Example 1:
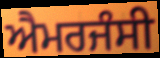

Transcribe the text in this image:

ਐਮਰਜੰਸੀ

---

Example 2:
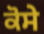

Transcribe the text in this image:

ਕੋਸੇ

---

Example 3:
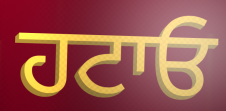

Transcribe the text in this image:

ਹਟਾਓ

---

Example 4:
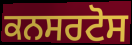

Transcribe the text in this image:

ਕਨਸਰਟੋਸ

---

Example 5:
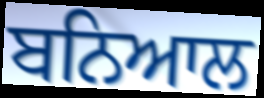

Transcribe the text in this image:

ਬਨਿਆਲ